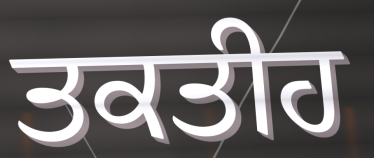
ਤਕਤੀਹ